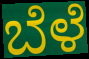
ಬೆಳೆ